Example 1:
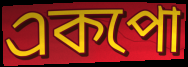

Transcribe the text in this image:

একপো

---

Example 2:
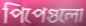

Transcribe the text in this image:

পিপেগুলো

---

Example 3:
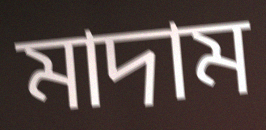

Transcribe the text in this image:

মাদাম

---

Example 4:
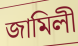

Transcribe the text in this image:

জামিলী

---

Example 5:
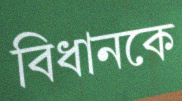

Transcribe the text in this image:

বিধানকে